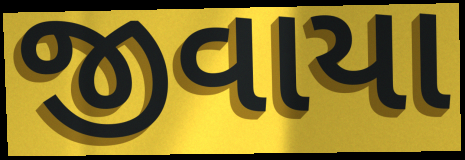
જીવાયા